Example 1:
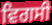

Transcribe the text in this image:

ਵਿਗਸੀ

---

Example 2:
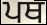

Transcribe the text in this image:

ਪਥ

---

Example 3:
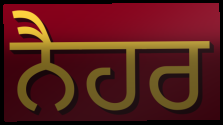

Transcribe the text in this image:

ਨੈਹਰ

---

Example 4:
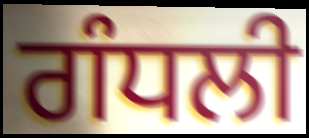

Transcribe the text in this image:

ਗੰਧਲੀ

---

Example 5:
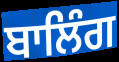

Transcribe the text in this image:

ਬਾਲਿੰਗ